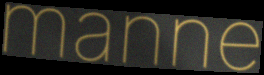
manne